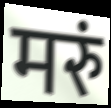
मरुं